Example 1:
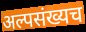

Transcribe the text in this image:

अल्पसंख्यच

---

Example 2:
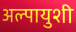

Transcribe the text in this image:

अल्पायुशी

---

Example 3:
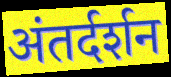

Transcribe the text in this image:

अंतर्दर्शन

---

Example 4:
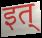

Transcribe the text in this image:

इत्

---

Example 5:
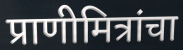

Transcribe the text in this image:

प्राणीमित्रांचा